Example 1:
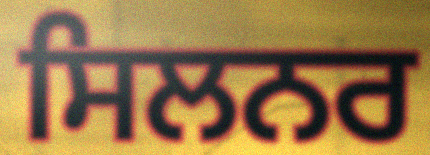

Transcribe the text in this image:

ਸਿਲਨਰ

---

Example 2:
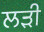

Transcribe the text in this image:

ਲਡ਼ੀ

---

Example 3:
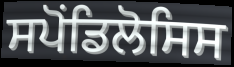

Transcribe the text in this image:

ਸਪੋਂਡਿਲੋਸਿਸ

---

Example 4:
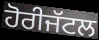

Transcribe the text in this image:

ਹੋਰੀਜੱਟਲ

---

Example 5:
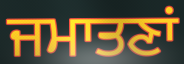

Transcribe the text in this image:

ਜਮਾਤਣਾਂ